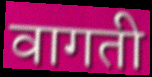
वागती